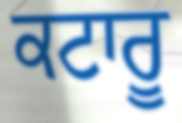
ਕਟਾਰੂ